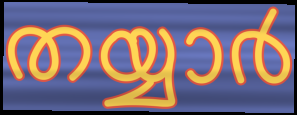
തയ്യാർ